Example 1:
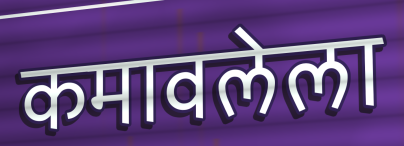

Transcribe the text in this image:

कमावलेला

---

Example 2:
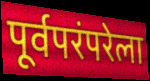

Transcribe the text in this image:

पूर्वपरंपरेला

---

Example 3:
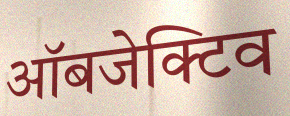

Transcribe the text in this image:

ऑबजेक्टिव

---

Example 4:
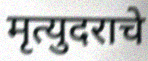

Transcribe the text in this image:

मृत्युदराचे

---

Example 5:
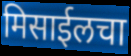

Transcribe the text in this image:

मिसाईलचा